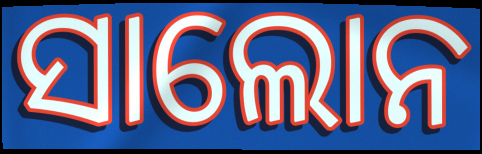
ସାଲୋନ